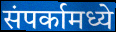
संपर्कामध्ये